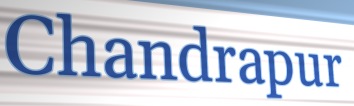
Chandrapur